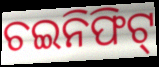
ଚଇନିଫିଟ୍